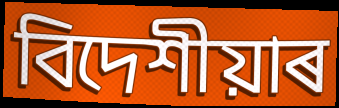
বিদেশীয়াৰ